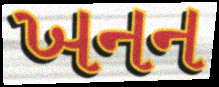
ખનન